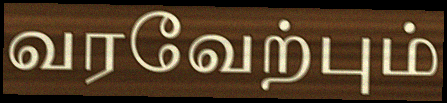
வரவேற்பும்